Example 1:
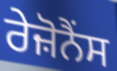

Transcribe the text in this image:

ਰੇਜ਼ੋਨੈਂਸ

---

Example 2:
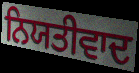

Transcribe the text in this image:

ਨਿਯਤੀਵਾਦ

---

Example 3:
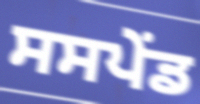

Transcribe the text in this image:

ਸਸਪੇੰਡ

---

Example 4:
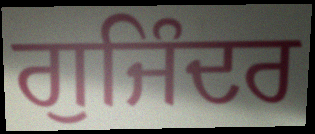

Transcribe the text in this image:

ਗੁਜਿੰਦਰ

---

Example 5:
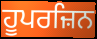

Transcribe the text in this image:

ਹੂਪਰਜ਼ਿਨ